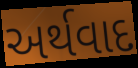
અર્થવાદ